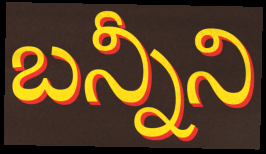
బన్నీని